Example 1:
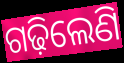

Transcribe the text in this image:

ଗଢ଼ିଲେଣି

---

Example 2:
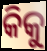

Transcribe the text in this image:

କିକୁ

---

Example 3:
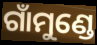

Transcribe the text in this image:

ଗାଁମୁଣ୍ଡେ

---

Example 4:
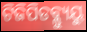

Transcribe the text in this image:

ଟିଜିପିଡବ୍ଲ୍ୟୁୟୁ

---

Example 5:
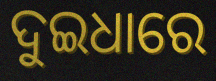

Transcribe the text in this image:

ଦୁଇଧାରେ